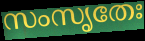
സംസൃതേഃ